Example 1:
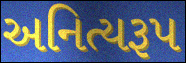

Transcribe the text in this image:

અનિત્યરૂપ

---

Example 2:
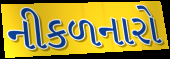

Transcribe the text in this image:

નીકળનારો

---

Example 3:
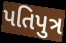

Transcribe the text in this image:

પતિપુત્ર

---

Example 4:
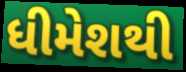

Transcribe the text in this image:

ધીમેશથી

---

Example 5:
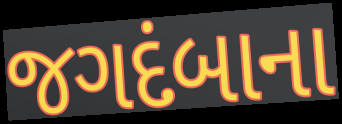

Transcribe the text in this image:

જગદંબાના